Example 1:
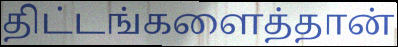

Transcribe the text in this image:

திட்டங்களைத்தான்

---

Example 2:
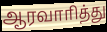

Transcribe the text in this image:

ஆரவாரித்து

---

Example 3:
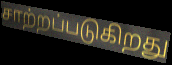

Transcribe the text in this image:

சாற்றப்படுகிறது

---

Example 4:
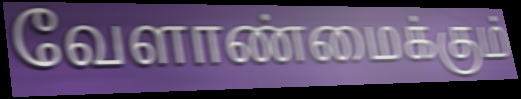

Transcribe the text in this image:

வேளாண்மைக்கும்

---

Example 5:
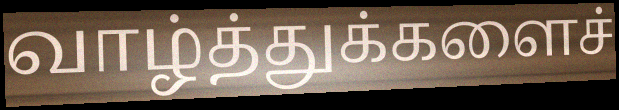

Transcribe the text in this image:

வாழ்த்துக்களைச்